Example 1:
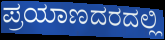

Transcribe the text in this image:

ಪ್ರಯಾಣದರದಲ್ಲಿ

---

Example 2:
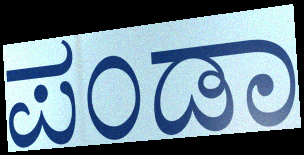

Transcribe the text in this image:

ಪಂಡಾ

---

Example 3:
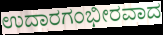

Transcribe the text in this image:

ಉದಾರಗಂಭೀರವಾದ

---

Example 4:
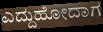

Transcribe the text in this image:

ಎದ್ದುಹೋದಾಗ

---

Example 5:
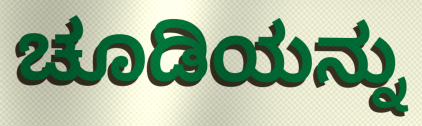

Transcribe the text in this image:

ಚೂಡಿಯನ್ನು